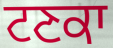
ਟਣਕਾ